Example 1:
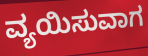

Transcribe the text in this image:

ವ್ಯಯಿಸುವಾಗ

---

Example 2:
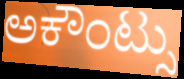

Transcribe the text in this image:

ಅಕೌಂಟ್ಸು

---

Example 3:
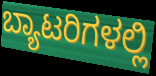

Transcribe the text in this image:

ಬ್ಯಾಟರಿಗಳಲ್ಲಿ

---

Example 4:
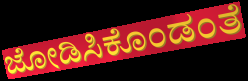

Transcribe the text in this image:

ಜೋಡಿಸಿಕೊಂಡಂತೆ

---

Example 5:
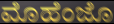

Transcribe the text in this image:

ಮೊಹೆಂಜೊ